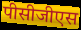
पीसीजीएस